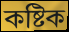
কষ্টিক